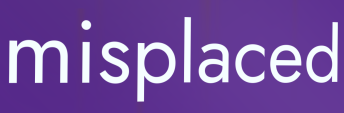
misplaced